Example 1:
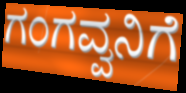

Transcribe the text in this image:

ಗಂಗವ್ವನಿಗೆ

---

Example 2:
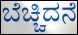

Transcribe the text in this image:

ಬೆಚ್ಚಿದನೆ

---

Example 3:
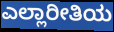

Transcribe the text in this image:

ಎಲ್ಲಾರೀತಿಯ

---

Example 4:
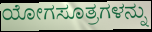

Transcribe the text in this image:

ಯೋಗಸೂತ್ರಗಳನ್ನು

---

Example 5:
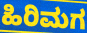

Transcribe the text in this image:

ಹಿರಿಮಗ